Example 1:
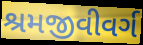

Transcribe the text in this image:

શ્રમજીવીવર્ગ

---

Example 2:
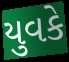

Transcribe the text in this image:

યુવકે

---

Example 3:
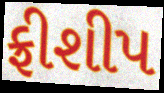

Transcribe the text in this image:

ફ્રીશીપ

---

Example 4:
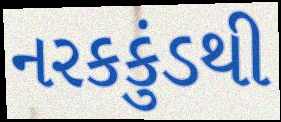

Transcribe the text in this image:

નરકકુંડથી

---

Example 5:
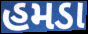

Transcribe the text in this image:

હમડા